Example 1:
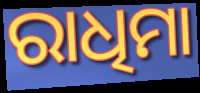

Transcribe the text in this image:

ରାଧିମା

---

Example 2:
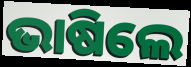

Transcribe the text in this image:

ଭାଷିଲେ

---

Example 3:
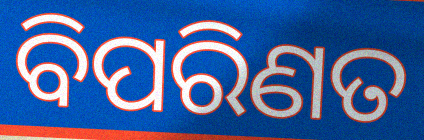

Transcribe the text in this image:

ବିପରିଣତ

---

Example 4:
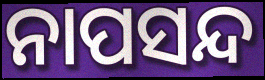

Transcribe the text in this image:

ନାପସନ୍ଦ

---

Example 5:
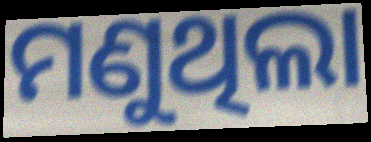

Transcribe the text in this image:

ମଣୁଥିଲା